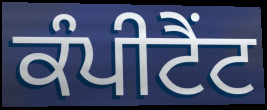
ਕੰਪੀਟੈਂਟ